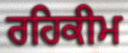
ਰਹਿਕੀਮ